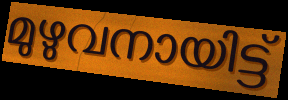
മുഴുവനായിട്ട്